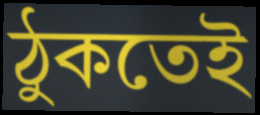
ঠুকতেই